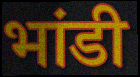
भांडी